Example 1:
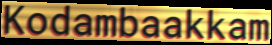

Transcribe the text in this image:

Kodambaakkam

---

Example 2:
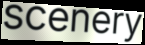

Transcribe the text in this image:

scenery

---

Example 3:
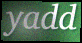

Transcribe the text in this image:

yadd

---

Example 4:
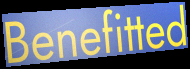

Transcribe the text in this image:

Benefitted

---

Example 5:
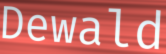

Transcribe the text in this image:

Dewald